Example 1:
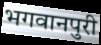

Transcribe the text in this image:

भगवानपुरी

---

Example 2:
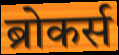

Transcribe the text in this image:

ब्रोकर्स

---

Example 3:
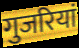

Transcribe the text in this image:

गुजरियां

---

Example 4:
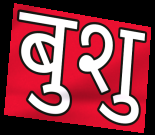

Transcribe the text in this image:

बुशु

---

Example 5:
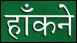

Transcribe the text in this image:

हाँकने